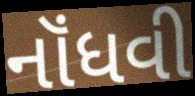
નૉંધવી